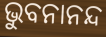
ଭୁବନାନନ୍ଦ